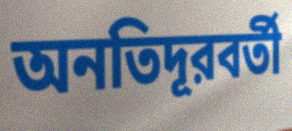
অনতিদূরবর্তী